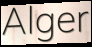
Alger